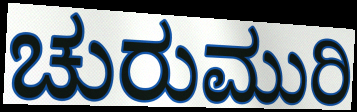
ಚುರುಮುರಿ